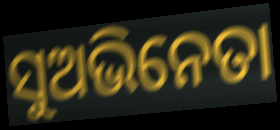
ସୁଅଭିନେତା